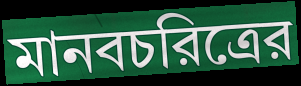
মানবচরিত্রের